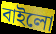
বাইলো